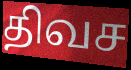
திவச